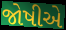
જોષીએ